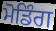
ਮੋਡਿੰਗ